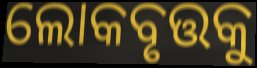
ଲୋକବୃତ୍ତକୁ